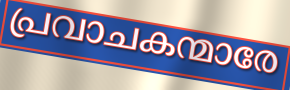
പ്രവാചകന്മാരേ